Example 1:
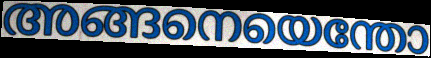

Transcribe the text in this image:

അങ്ങനെയെന്തോ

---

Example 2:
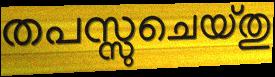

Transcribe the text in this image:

തപസ്സുചെയ്തു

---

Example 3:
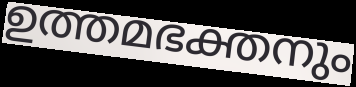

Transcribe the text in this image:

ഉത്തമഭക്തനും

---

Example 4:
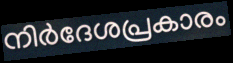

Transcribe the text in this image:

നിർദേശപ്രകാരം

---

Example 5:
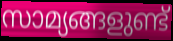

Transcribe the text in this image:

സാമ്യങ്ങളുണ്ട്